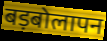
बड़बोलापन